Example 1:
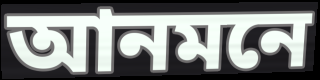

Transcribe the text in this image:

আনমনে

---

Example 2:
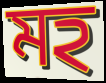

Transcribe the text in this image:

মহ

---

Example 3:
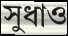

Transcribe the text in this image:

সুধাও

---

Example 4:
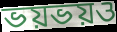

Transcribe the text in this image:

ভয়ভয়ও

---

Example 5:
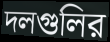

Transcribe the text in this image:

দলগুলির